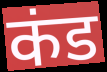
कंड